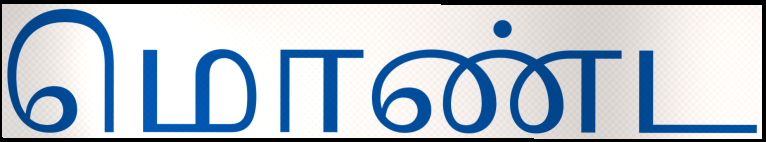
மொண்ட